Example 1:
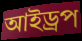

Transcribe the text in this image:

আইড্রপ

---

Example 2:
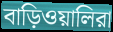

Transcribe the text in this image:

বাড়িওয়ালিরা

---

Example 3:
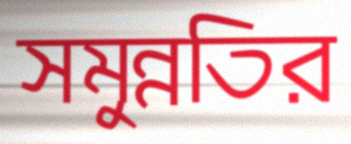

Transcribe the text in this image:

সমুন্নতির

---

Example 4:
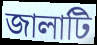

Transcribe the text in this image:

জালাটি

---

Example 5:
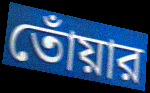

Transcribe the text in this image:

তোঁয়ার